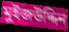
মুইজউদ্দিন